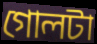
গোলটা